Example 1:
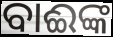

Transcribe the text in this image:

ବାଈଙ୍କ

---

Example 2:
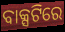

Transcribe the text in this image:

ବାକ୍ସଟିରେ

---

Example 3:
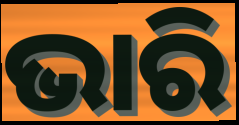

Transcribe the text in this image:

ଭାରି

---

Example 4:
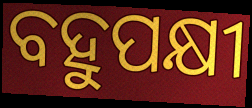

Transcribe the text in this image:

ବହୁପକ୍ଷୀ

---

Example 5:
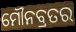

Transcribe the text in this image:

ମୌନବ୍ରତର